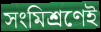
সংমিশ্রণেই